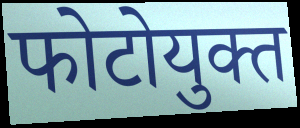
फोटोयुक्त